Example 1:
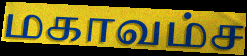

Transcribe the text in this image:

மகாவம்ச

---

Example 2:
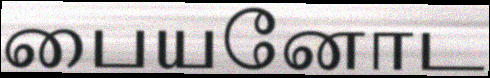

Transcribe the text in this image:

பையனோட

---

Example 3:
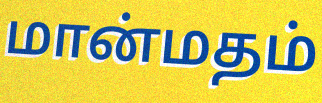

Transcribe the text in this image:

மான்மதம்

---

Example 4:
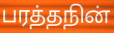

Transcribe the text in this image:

பரத்தநின்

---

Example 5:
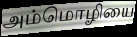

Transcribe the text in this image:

அம்மொழியை